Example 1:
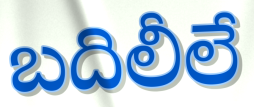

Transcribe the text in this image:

బదిలీలే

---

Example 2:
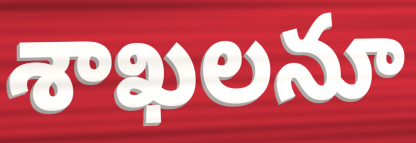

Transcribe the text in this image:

శాఖలనూ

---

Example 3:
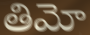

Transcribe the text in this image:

తిమో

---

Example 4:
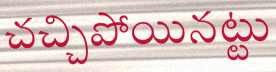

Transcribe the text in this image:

చచ్చిపోయినట్టు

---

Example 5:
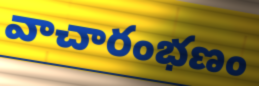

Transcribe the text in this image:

వాచారంభణం